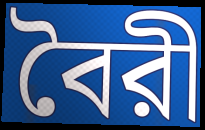
বৈরী